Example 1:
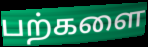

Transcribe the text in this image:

பற்களை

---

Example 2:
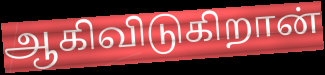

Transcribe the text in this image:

ஆகிவிடுகிறான்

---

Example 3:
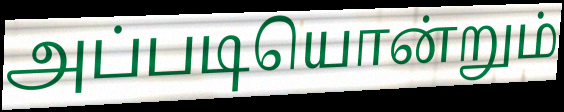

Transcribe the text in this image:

அப்படியொன்றும்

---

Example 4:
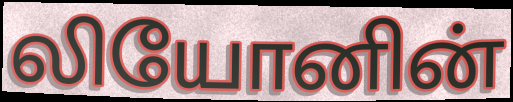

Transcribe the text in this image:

லியோனின்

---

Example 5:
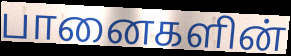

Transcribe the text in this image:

பானைகளின்